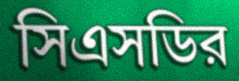
সিএসডির